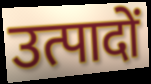
उत्पादों